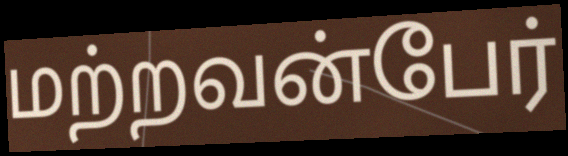
மற்றவன்பேர்